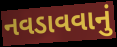
નવડાવવાનું